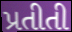
પ્રતીતી